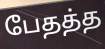
பேதத்த